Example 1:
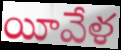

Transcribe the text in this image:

యీవేళ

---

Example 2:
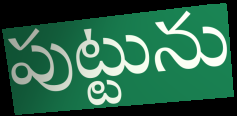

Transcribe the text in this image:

పుట్టును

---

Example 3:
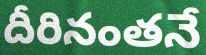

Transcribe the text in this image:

దీరినంతనే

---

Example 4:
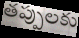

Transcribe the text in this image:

తప్పులకు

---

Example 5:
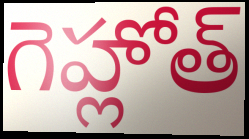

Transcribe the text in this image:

గెహ్లోత్